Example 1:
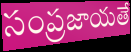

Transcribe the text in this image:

సంప్రజాయతే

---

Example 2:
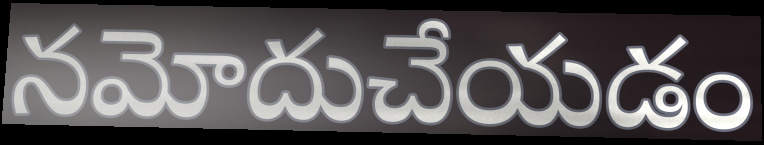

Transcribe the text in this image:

నమోదుచేయడం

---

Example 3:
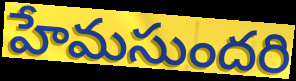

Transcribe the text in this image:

హేమసుందరి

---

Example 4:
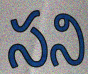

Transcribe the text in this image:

సని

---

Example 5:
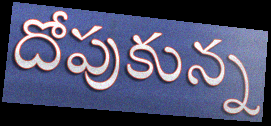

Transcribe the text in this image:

దోపుకున్న